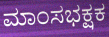
ಮಾಂಸಭಕ್ಷಕ